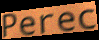
Perec